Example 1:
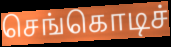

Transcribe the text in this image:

செங்கொடிச்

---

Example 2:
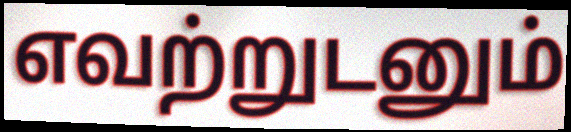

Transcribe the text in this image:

எவற்றுடனும்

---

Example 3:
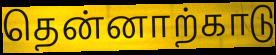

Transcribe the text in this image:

தென்னாற்காடு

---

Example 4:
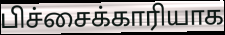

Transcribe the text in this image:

பிச்சைக்காரியாக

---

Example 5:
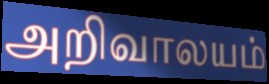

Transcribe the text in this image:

அறிவாலயம்